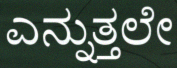
ಎನ್ನುತ್ತಲೇ